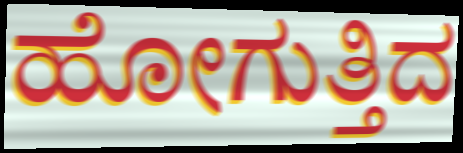
ಹೋಗುತ್ತಿದ